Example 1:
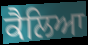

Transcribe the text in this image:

ਕੈਲਿਆ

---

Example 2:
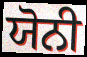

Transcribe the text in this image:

ਯੋਨੀ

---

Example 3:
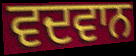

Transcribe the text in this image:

ਵਦਵਾਨ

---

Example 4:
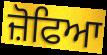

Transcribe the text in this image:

ਜ਼ੋਫਿਆ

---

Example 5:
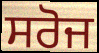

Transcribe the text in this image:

ਸਰੋਜ